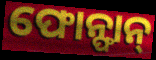
ଫୋନ୍ଫାନ୍